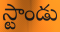
స్టాండు